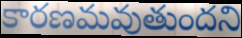
కారణమవుతుందని